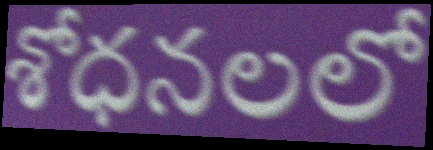
శోధనలలో